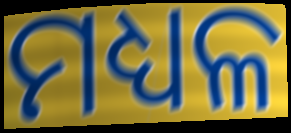
ମଧ୍ୟଳ